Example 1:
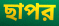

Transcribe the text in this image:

ছাপর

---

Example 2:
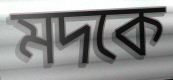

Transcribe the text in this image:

মদকে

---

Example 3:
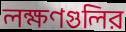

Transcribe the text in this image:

লক্ষণগুলির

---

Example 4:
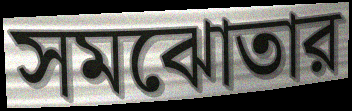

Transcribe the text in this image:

সমঝোতার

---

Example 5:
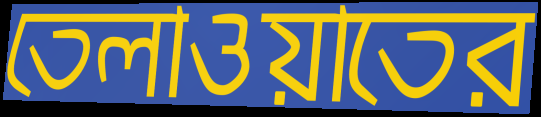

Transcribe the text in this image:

তেলাওয়াতের